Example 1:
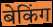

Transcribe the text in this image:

बेकिंग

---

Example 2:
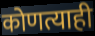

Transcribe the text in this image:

कोणत्याही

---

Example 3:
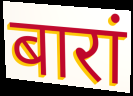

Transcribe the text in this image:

बारां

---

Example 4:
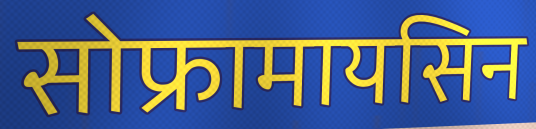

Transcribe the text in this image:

सोफ्रामायसिन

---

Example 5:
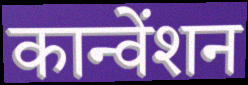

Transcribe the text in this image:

कान्वेंशन